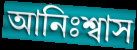
আনিঃশ্বাস